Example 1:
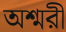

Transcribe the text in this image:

অশ্মরী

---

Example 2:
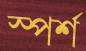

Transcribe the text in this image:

স্পর্শ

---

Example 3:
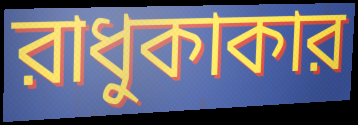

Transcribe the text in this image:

রাধুকাকার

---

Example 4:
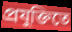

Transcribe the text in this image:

প্রযুক্তিতে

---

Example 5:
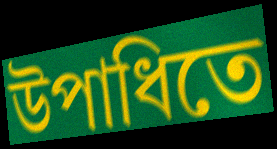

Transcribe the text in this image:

উপাধিতে